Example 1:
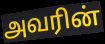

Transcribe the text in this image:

அவரின்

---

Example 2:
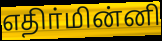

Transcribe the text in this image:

எதிர்மின்னி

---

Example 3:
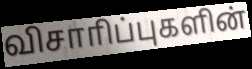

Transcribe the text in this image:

விசாரிப்புகளின்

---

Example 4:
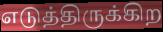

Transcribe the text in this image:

எடுத்திருக்கிற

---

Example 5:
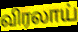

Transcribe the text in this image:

விரலாய்